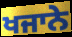
ਖਜਾਨੇ